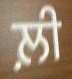
ਲ਼ੀ